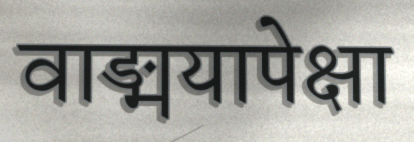
वाङ्मयापेक्षा